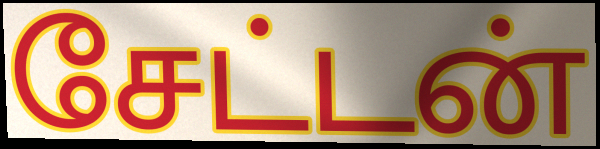
சேட்டன்